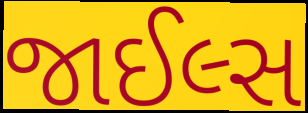
જાઈલ્સ